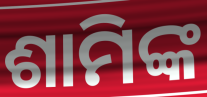
ଶାମିଙ୍କ